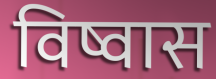
विष्वास